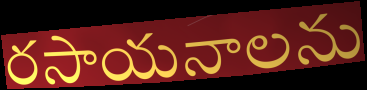
రసాయనాలను